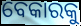
ବେକାରକୁ